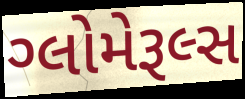
ગ્લોમેરૂલ્સ